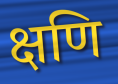
क्षणि